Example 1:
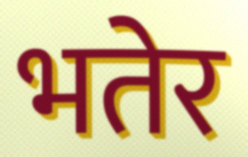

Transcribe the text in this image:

भतेर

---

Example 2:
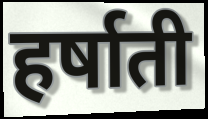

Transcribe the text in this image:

हर्षाती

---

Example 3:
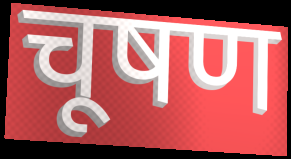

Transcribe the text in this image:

चूषण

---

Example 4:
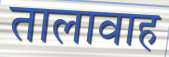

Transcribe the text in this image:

तालावाह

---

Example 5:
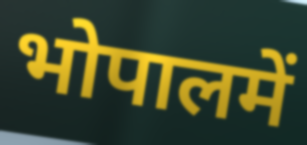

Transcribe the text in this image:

भोपालमें